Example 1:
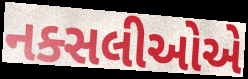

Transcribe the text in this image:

નક્સલીઓએ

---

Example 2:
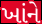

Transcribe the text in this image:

ખાંને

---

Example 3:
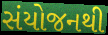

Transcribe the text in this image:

સંયોજનથી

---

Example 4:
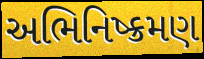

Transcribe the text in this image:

અભિનિષ્ક્રમણ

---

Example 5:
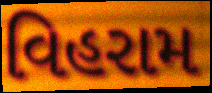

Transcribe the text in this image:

વિહરામ